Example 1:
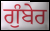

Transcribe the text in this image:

ਗੁੰਬੇਰ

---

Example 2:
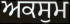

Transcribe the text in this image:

ਅਕਸੁਮ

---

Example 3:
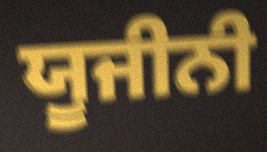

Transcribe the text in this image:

ਯੂਜੀਨੀ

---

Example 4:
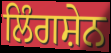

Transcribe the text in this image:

ਲਿੰਗਸ਼ੇਨ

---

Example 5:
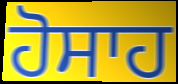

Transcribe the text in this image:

ਹੋਸਾਹ